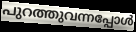
പുറത്തുവന്നപ്പോൾ